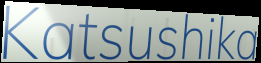
Katsushika